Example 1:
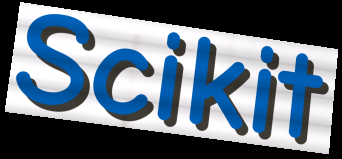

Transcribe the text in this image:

Scikit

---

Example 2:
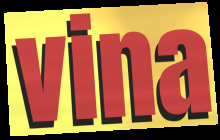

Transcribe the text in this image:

vina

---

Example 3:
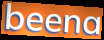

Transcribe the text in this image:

beena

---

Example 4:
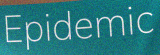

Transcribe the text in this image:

Epidemic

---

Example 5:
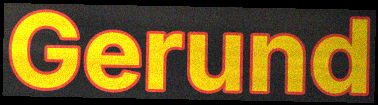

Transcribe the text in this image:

Gerund